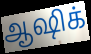
ஆஷிக்